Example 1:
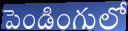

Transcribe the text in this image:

పెండింగులో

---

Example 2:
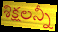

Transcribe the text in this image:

శిక్షలన్నీ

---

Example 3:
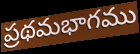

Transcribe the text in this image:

ప్రథమభాగము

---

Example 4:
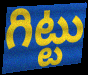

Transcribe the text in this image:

గిట్టు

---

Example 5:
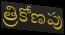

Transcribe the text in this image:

త్రికోణపు